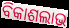
ବିକାଶଲାଭ